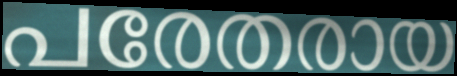
പരേതരായ